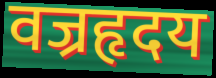
वज्रहृदय